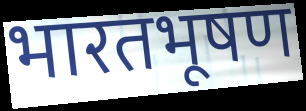
भारतभूषण